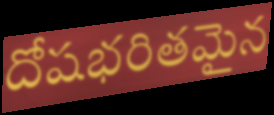
దోషభరితమైన